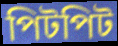
পিটপিট